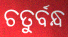
ଚତୁର୍ବନ୍ଧ